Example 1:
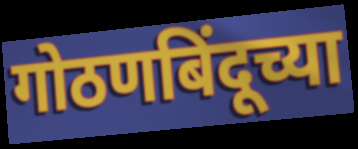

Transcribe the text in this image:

गोठणबिंदूच्या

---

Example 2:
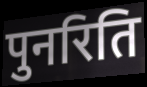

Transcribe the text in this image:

पुनरिति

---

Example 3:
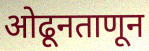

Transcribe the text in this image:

ओढूनताणून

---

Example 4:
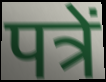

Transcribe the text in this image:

पत्रें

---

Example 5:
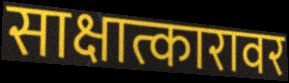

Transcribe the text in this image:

साक्षात्कारावर